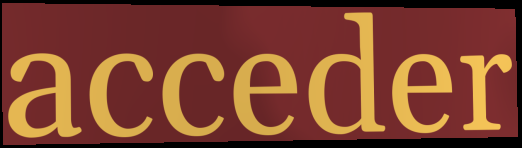
acceder